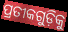
ପ୍ରତୀକଗୁଡ଼ିକୁ